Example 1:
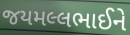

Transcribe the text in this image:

જયમલ્લભાઈને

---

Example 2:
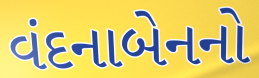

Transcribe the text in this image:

વંદનાબેનનો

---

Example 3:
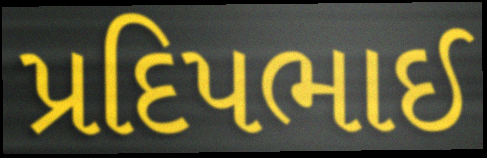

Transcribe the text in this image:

પ્રદિપભાઈ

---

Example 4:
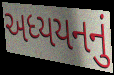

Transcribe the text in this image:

અધ્યયનનું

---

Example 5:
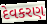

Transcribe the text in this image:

દેવકરણ